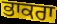
ਭਾਕਰਾ